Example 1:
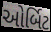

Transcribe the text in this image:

ઓર્બિટ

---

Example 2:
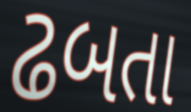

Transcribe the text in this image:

ઢબતા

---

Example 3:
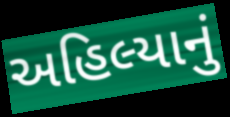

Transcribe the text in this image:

અહિલ્યાનું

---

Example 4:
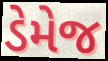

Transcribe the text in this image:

ડેમેજ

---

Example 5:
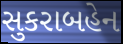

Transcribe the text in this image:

સુકરાબહેન